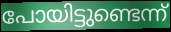
പോയിട്ടുണ്ടെന്ന്